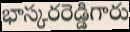
భాస్కరరెడ్డిగారు